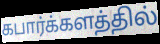
கபார்க்களத்தில்